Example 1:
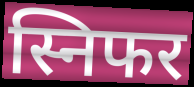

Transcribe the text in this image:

स्निफर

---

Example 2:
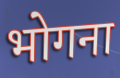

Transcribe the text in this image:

भोगना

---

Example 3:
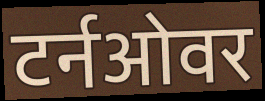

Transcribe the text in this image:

टर्नओवर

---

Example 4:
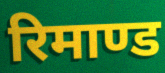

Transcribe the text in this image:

रिमाण्ड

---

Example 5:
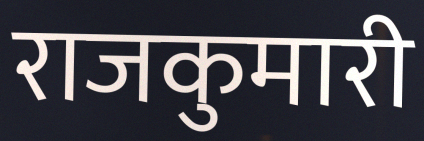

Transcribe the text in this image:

राजकुमारी